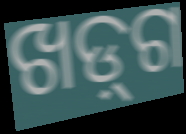
ଖଡ଼୍‌ଗ